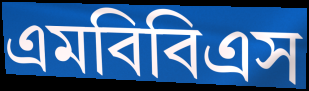
এমবিবিএস